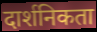
दार्शनिकता